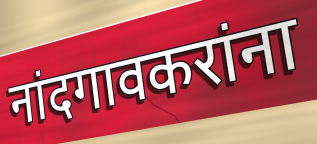
नांदगावकरांना